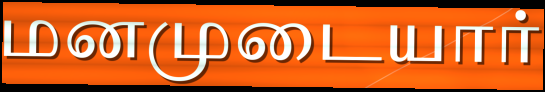
மனமுடையார்